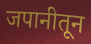
जपानीतून